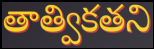
తాత్వికతని